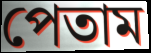
পেতাম